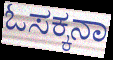
ಓಸಕ್ಕನಾ